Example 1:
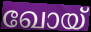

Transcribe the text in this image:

ഖോയ്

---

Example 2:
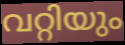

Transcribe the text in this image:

വറ്റിയും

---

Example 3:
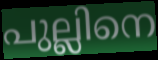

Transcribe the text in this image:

പുല്ലിനെ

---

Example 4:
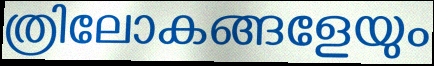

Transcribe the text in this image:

ത്രിലോകങ്ങളേയും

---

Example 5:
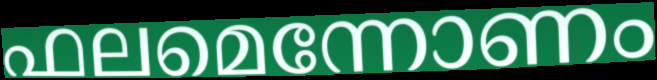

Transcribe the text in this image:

ഫലമെന്നോണം